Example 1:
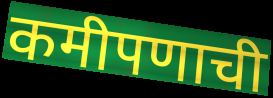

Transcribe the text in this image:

कमीपणाची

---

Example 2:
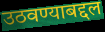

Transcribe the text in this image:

उठवण्याबद्दल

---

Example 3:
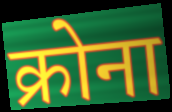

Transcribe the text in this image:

क्रोना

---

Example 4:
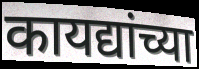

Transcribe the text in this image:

कायद्यांच्या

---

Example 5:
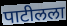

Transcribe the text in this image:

पाटीलला